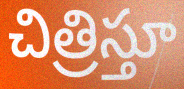
చిత్రిస్తూ